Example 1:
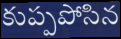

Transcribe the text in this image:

కుప్పపోసిన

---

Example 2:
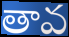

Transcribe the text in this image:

తావ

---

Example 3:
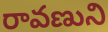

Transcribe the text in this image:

రావణుని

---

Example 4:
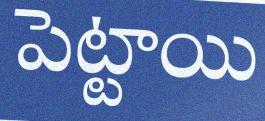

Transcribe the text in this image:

పెట్టాయి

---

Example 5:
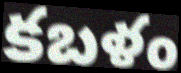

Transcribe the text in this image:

కబళం